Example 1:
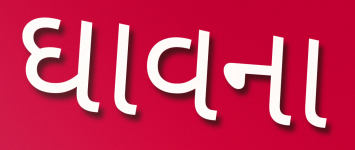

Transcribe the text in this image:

ઘાવના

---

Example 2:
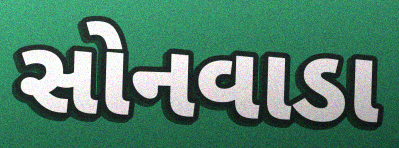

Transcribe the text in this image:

સોનવાડા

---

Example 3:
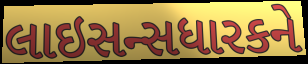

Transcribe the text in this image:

લાઇસન્સધારકને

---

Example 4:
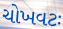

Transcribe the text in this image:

ચોખવટઃ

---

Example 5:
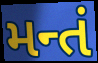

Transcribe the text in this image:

મન્તં